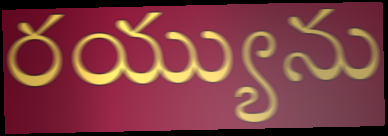
రయ్యును